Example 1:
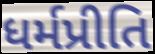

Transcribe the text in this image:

ધર્મપ્રીતિ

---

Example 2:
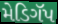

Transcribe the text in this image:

મેડિગૅપ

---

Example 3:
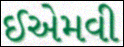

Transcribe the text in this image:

ઈએમવી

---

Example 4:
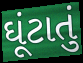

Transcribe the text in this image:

ઘૂંટાતું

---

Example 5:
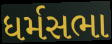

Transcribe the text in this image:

ધર્મસભા